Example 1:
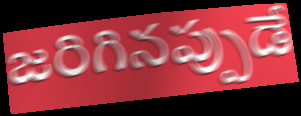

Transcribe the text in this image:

జరిగినప్పుడే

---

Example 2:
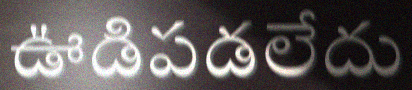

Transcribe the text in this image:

ఊడిపడలేదు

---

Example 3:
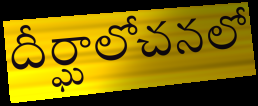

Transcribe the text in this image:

దీర్ఘాలోచనలో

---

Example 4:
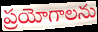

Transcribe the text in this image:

ప్రయోగాలను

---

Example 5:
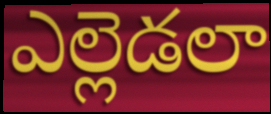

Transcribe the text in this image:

ఎల్లెడలా